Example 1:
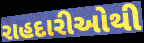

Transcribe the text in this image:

રાહદારીઓથી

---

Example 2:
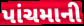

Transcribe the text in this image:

પાંચમાની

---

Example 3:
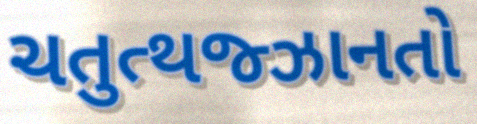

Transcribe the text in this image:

ચતુત્થજ્ઝાનતો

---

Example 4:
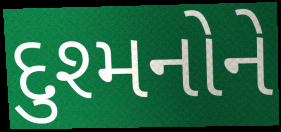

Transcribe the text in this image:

દુશ્મનોને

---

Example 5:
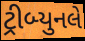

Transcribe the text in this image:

ટ્રીબ્યુનલે